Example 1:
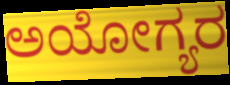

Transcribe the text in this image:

ಅಯೋಗ್ಯರ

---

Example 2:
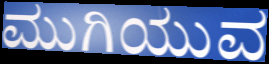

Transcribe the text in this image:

ಮುಗಿಯುವ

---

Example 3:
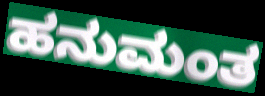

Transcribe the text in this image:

ಹನುಮಂತ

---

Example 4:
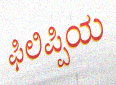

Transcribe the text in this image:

ಫಿಲಿಪ್ಪಿಯ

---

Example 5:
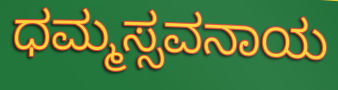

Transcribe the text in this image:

ಧಮ್ಮಸ್ಸವನಾಯ